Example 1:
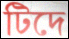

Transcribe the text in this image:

টিদে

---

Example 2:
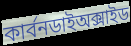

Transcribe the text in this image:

কার্বনডাইঅক্সাইড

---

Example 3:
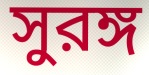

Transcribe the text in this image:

সুরঙ্গ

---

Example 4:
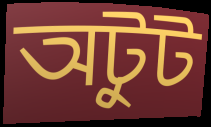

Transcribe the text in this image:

অটুট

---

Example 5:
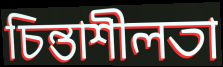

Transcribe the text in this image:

চিন্তাশীলতা